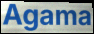
Agama